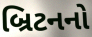
બ્રિટનનો